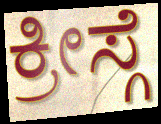
ಕ್ರೀಸ್ಗೆ